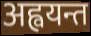
अह्वयन्त